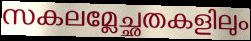
സകലമ്ലേച്ഛതകളിലും